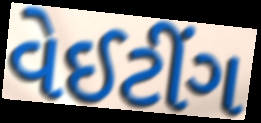
વેઈટીંગ